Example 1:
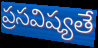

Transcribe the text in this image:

ప్రసవిష్యతే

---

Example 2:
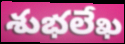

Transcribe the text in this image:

శుభలేఖ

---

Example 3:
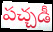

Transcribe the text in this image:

పచ్చడీ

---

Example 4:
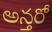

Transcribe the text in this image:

అన్తరో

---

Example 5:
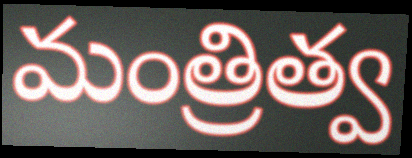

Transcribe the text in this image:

మంత్రిత్వ